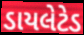
ડાયલેટેડ